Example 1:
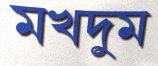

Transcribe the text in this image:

মখদুম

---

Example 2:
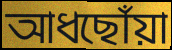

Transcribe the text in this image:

আধছোঁয়া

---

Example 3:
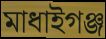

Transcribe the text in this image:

মাধাইগঞ্জ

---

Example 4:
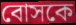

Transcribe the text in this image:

বোসকে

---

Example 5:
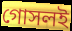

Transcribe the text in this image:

গোসলই